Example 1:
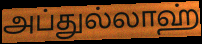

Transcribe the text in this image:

அப்துல்லாஹ்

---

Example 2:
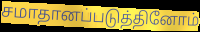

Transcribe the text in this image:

சமாதானப்படுத்தினோம்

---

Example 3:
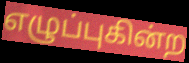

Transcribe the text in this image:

எழுப்புகின்ற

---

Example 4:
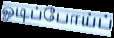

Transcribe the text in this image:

ஓடிப்போய்ப்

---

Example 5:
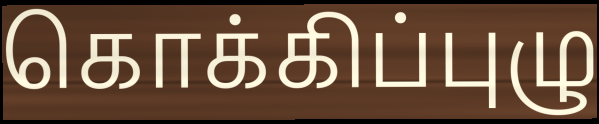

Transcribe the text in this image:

கொக்கிப்புழு